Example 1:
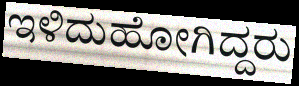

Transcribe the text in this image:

ಇಳಿದುಹೋಗಿದ್ದರು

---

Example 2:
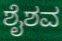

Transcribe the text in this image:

ಶೈಶವ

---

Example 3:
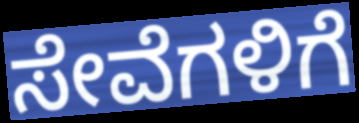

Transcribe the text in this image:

ಸೇವೆಗಳಿಗೆ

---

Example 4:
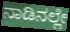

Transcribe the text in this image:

ನಾಡಿನಲ್ಲೇ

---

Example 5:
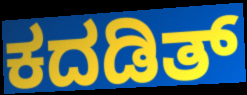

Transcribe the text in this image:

ಕದಡಿತ್